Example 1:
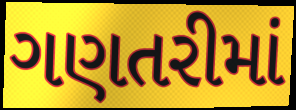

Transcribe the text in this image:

ગણતરીમાં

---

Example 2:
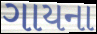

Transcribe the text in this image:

ગાયના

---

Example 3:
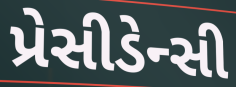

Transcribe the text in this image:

પ્રેસીડેન્સી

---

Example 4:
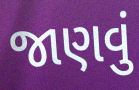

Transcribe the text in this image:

જાણવું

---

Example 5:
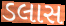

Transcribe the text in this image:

ડલાસ